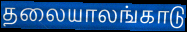
தலையாலங்காடு